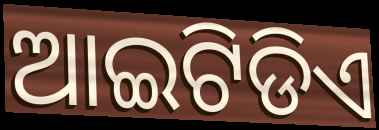
ଆଇଟିଡିଏ